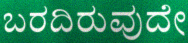
ಬರದಿರುವುದೇ